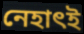
নেহাৎই